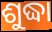
ଶୁଦ୍ଧା